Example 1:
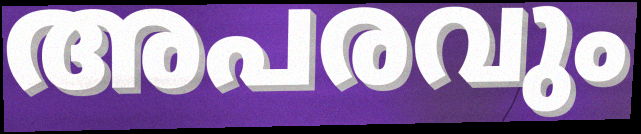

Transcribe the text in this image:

അപരവും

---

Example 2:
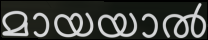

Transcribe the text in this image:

മായയാൽ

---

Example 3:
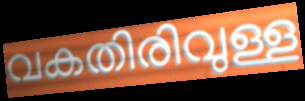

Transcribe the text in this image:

വകതിരിവുള്ള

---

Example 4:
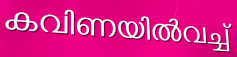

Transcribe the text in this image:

കവിണയിൽവച്ച്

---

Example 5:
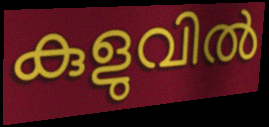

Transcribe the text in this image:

കുളുവിൽ